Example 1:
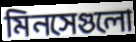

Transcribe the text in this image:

মিনসেগুলো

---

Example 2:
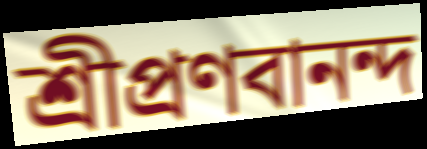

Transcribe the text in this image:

শ্রীপ্রণবানন্দ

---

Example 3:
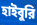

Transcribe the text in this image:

হাইবুরি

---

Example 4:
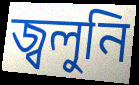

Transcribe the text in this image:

জ্বলুনি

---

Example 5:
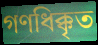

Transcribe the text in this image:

গণধিক্কৃত